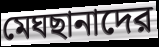
মেঘছানাদের